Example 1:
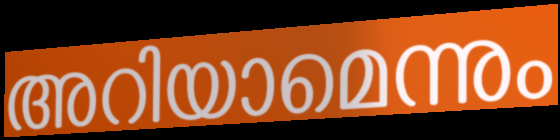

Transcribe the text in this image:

അറിയാമെന്നും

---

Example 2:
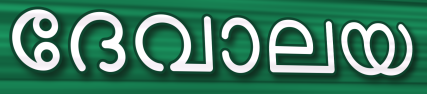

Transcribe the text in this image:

ദേവാലയ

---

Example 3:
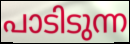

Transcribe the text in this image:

പാടിടുന്ന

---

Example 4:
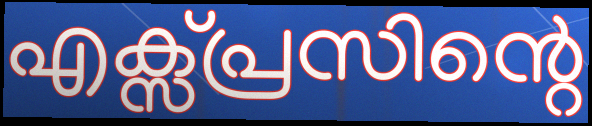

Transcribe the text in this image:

എക്സ്പ്രസിന്റെ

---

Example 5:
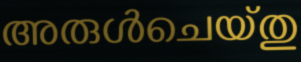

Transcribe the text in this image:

അരുൾചെയ്തു